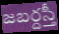
జబర్దస్తీ